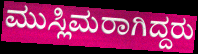
ಮುಸ್ಲಿಮರಾಗಿದ್ದರು